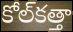
కోల్‌కత్తా